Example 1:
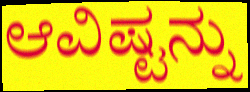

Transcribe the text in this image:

ಆವಿಷ್ಟನ್ನು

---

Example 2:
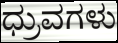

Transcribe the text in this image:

ಧ್ರುವಗಳು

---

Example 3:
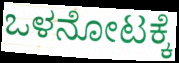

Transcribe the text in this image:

ಒಳನೋಟಕ್ಕೆ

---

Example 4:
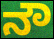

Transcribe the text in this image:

ನೌ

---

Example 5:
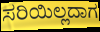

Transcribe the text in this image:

ಸರಿಯಿಲ್ಲದಾಗ